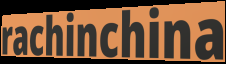
rachinchina